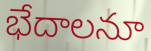
భేదాలనూ